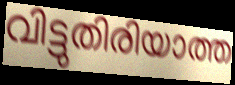
വിട്ടുതിരിയാത്ത